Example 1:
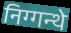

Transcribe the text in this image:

निग्गन्थे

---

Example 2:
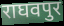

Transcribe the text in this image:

राघवपुर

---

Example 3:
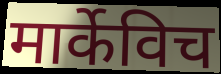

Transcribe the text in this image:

मार्केविच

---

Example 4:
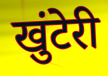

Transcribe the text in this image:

खुंटेरी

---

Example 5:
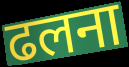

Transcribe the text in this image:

ढलना